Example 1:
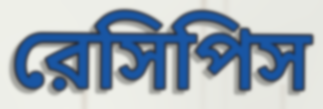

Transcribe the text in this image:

রেসিপিস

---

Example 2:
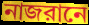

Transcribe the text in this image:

নাজরানে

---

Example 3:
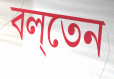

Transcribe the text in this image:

বল্তেন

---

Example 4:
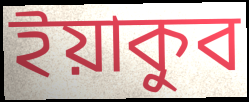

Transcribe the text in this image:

ইয়াকুব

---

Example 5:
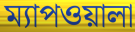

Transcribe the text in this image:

ম্যাপওয়ালা